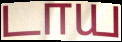
டாய